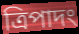
ত্রিপাদং